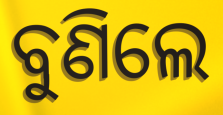
ବୁଣିଲେ